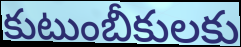
కుటుంబీకులకు